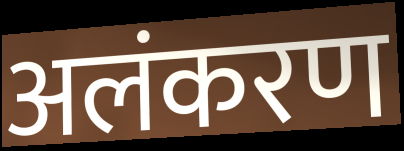
अलंकरण